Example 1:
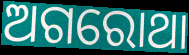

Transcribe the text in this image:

ଅଗରୋଥା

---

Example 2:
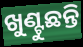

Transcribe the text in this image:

ଖୁଣ୍ଟୁଛନ୍ତି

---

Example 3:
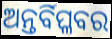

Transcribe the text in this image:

ଅନ୍ତର୍ବିପ୍ଳବର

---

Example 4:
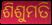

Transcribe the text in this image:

ଶିଶୁମତି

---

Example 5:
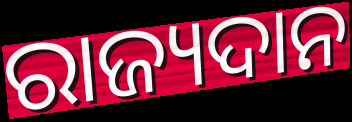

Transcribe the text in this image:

ରାଜ୍ୟଦାନ